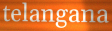
telangana